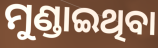
ମୁଣ୍ଡାଇଥିବା